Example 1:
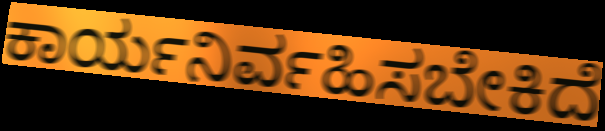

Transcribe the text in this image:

ಕಾರ್ಯನಿರ್ವಹಿಸಬೇಕಿದೆ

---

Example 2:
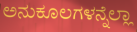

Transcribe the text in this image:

ಅನುಕೂಲಗಳನ್ನೆಲ್ಲಾ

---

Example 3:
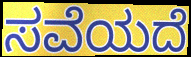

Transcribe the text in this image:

ಸವೆಯದೆ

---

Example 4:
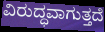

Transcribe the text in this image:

ವಿರುದ್ಧವಾಗುತ್ತದೆ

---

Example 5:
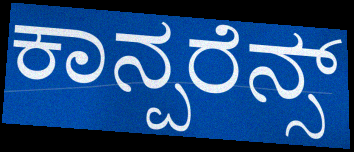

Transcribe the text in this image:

ಕಾನ್ಪರೆನ್ಸ್